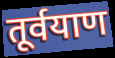
तूर्वयाण